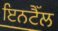
ਇਨਟੈੱਲ